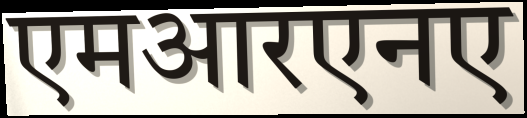
एमआरएनए